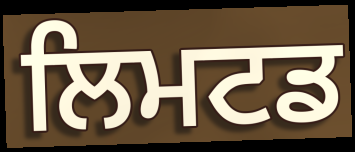
ਲਿਮਟਡ